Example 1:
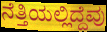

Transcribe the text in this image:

ನೆತ್ತಿಯಲ್ಲಿದ್ದೆವು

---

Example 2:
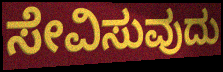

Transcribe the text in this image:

ಸೇವಿಸುವುದು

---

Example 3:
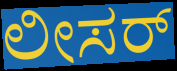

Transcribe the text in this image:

ಲೀಸರ್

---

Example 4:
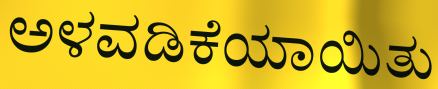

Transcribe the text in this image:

ಅಳವಡಿಕೆಯಾಯಿತು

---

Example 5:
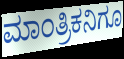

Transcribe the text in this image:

ಮಾಂತ್ರಿಕನಿಗೂ